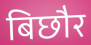
बिछौर